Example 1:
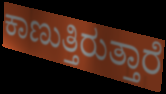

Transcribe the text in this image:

ಕಾಣುತ್ತಿರುತ್ತಾರೆ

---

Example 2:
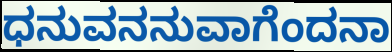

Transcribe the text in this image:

ಧನುವನನುವಾಗೆಂದನಾ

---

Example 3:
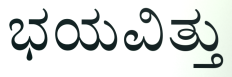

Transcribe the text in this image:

ಭಯವಿತ್ತು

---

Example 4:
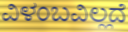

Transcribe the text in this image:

ವಿಳಂಬವಿಲ್ಲದೆ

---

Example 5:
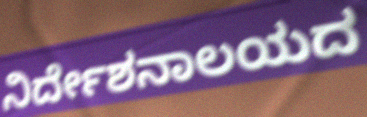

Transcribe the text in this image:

ನಿರ್ದೇಶನಾಲಯದ